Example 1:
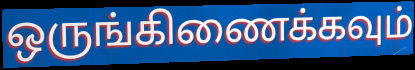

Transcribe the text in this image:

ஒருங்கிணைக்கவும்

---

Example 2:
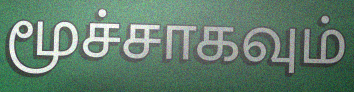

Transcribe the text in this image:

மூச்சாகவும்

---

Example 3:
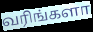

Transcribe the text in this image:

வரிங்களா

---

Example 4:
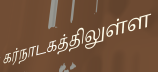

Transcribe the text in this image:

கர்நாடகத்திலுள்ள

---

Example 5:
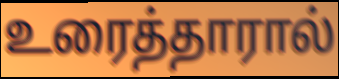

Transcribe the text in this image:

உரைத்தாரால்